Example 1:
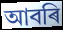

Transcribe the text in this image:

আবৰি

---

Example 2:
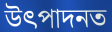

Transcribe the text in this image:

উৎপাদনত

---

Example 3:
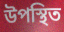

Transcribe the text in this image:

উপস্থিত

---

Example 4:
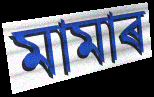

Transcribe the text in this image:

মামাৰ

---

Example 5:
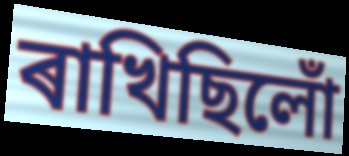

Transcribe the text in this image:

ৰাখিছিলোঁ